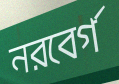
নরবের্গ